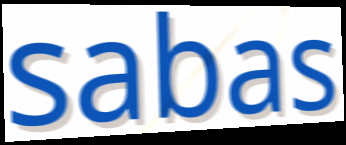
sabas